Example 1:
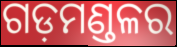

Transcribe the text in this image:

ଗଡ଼ମଣ୍ଡଳର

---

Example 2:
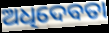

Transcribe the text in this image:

ଅଧିଦେବତା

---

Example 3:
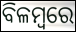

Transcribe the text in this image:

ବିଳମ୍ୱରେ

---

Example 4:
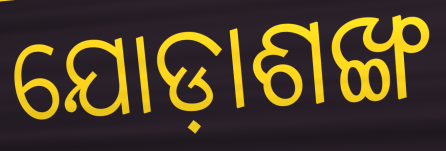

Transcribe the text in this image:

ଯୋଡ଼ାଶଙ୍ଖ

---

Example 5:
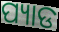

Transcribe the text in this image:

ପ୍ୟାଡ